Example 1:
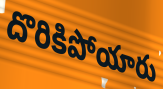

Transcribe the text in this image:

దొరికిపోయారు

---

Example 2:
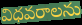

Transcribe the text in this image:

విధవరాలను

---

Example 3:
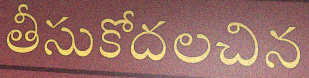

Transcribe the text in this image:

తీసుకోదలచిన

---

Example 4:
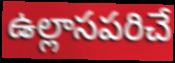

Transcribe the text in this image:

ఉల్లాసపరిచే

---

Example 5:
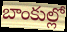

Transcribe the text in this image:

బాంకుల్లో